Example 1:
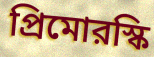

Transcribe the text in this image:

প্রিমোরস্কি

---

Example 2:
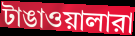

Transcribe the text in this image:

টাঙাওয়ালারা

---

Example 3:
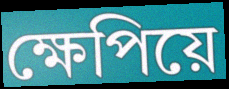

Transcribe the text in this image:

ক্ষেপিয়ে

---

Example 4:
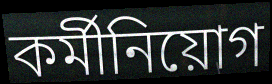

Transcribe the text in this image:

কর্মীনিয়োগ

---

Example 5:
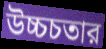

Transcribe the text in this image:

উচ্চচতার